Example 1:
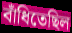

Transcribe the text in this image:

বাঁধিতেছিল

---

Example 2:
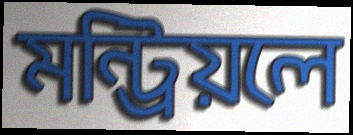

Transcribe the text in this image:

মন্ট্রিয়লে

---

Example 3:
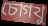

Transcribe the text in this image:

চোগথু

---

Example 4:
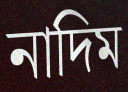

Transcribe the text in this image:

নাদিম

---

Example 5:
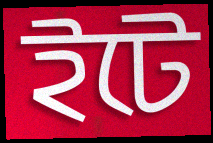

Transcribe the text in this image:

ইটে